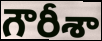
గౌరీశా